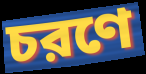
চরণে